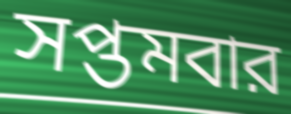
সপ্তমবার